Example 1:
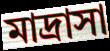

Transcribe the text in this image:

মাদ্রাসা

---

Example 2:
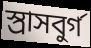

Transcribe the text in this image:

স্ত্রাসবুর্গ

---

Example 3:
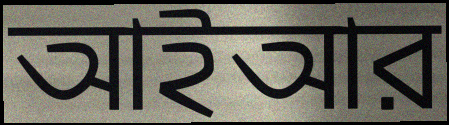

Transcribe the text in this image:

আইআর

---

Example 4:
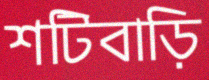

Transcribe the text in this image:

শটিবাড়ি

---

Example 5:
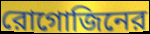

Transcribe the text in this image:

রোগোজিনের